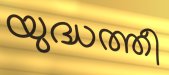
യുദ്ധത്തീ